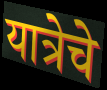
यात्रेचे